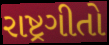
રાષ્ટ્રગીતો